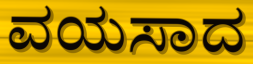
ವಯಸಾದ